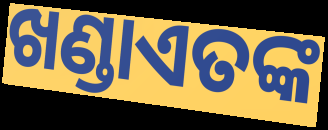
ଖଣ୍ଡାଏତଙ୍କ